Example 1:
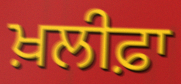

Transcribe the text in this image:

ਖ਼ਲੀਫ਼ਾ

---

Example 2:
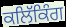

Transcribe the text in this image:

ਕਲਿੱਕਿੰਗ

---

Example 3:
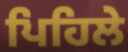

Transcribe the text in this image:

ਪਿਹਿਲੇ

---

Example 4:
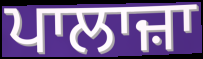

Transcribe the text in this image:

ਪਾਲਾਜ਼ਾ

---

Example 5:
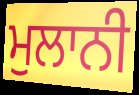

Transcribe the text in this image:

ਮੁਲਾਨੀ